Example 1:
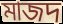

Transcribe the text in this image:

মাজদ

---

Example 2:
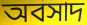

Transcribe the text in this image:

অবসাদ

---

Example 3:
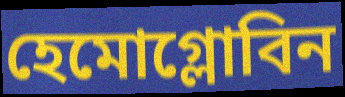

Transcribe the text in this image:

হেমোগ্লোবিন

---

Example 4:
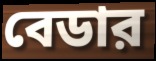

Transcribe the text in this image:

বেডার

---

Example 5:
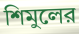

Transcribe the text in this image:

শিমুলের